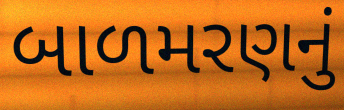
બાળમરણનું